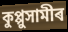
কুপ্পুসামীৰ